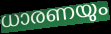
ധാരണയും